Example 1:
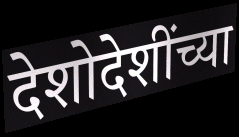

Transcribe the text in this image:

देशोदेशींच्या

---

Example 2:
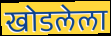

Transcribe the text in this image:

खोडलेला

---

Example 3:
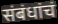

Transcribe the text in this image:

संबंधांचं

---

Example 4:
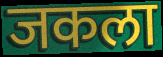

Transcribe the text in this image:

जकला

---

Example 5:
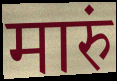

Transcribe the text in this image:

मारुं